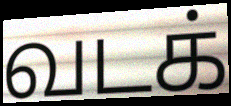
வடக்